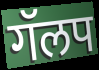
गॅलप